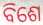
ବିଶେ